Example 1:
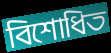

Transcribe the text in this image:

বিশোধিত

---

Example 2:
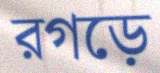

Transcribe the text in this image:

রগড়ে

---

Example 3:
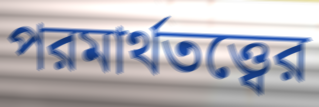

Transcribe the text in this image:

পরমার্থতত্ত্বের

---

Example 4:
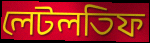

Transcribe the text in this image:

লেটলতিফ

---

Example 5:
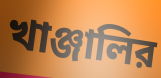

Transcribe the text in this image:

খাঞ্জালির